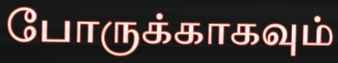
போருக்காகவும்